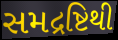
સમદ્રષ્ટિથી